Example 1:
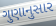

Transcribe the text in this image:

ગુણાનુસાર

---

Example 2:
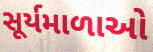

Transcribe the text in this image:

સૂર્યમાળાઓ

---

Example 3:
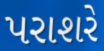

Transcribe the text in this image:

પરાશરે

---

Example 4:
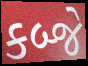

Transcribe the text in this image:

કબ્જે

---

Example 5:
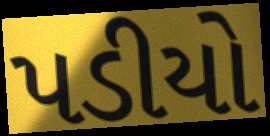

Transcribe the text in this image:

પડીયો